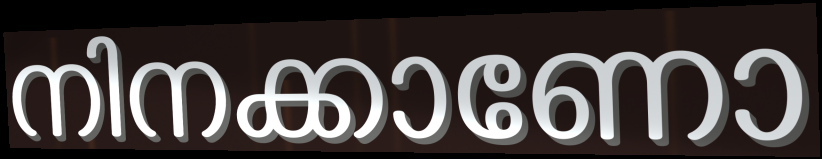
നിനക്കാണോ